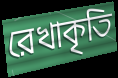
রেখাকৃতি